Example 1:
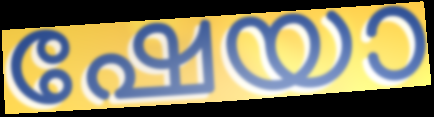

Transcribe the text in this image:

ഷേയാ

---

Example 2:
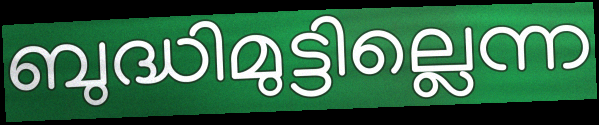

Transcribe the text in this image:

ബുദ്ധിമുട്ടില്ലെന്ന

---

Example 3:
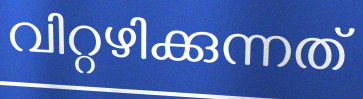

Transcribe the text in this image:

വിറ്റഴിക്കുന്നത്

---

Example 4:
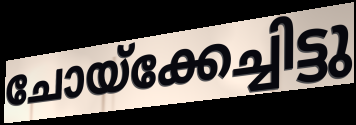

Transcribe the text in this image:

ചോയ്ക്കേച്ചിട്ടു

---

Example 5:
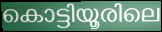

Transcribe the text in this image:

കൊട്ടിയൂരിലെ